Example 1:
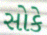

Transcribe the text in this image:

સોકે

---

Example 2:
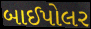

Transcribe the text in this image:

બાઈપોલર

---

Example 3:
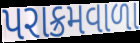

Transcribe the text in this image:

પરાક્રમવાળા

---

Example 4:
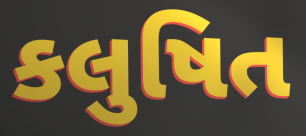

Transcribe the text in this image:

કલુષિત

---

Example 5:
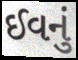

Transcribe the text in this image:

ઈવનું